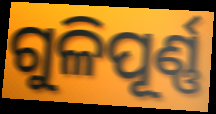
ଗୁଳିପୂର୍ଣ୍ଣ